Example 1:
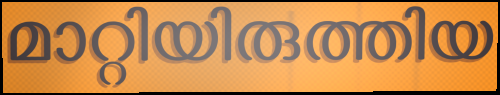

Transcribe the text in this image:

മാറ്റിയിരുത്തിയ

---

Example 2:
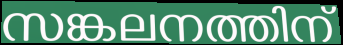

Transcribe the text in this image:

സങ്കലനത്തിന്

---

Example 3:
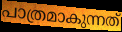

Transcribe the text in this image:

പാത്രമാകുന്നത്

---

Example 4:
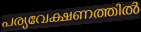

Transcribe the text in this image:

പര്യവേക്ഷണത്തിൽ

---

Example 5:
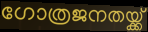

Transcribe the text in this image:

ഗോത്രജനതയ്ക്ക്